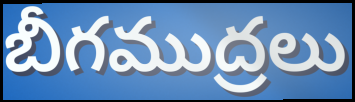
బీగముద్రలు